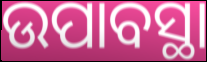
ଉପାବସ୍ଥା